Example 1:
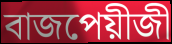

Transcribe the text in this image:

বাজপেয়ীজী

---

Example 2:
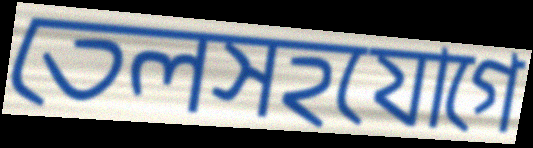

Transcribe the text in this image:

তেলসহযোগে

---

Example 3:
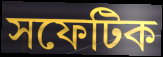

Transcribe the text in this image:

সফেটিক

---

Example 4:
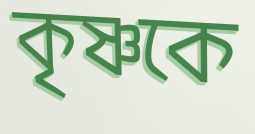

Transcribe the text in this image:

কৃষ্ণকে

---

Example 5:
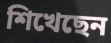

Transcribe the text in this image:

শিখেছেন